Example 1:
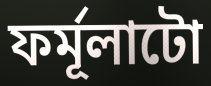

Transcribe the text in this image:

ফৰ্মূলাটো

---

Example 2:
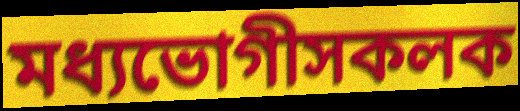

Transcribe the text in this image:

মধ্যভোগীসকলক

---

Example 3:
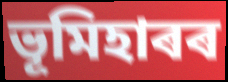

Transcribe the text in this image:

ভূমিহাৰৰ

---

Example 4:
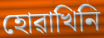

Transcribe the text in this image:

হোৱাখিনি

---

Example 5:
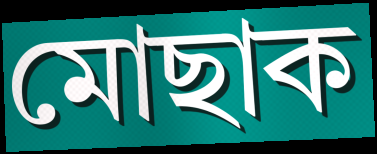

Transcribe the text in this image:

মোছাক